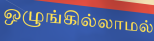
ஒழுங்கில்லாமல்